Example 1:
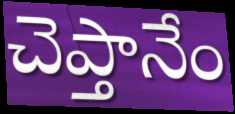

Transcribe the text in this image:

చెప్తానేం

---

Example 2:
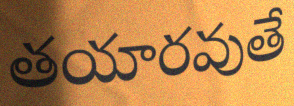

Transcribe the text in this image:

తయారవుతే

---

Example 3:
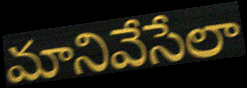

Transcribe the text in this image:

మానివేసేలా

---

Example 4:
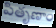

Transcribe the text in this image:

పితృణాం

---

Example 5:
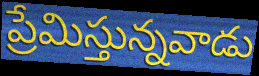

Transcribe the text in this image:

ప్రేమిస్తున్నవాడు